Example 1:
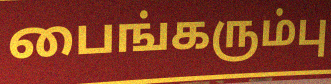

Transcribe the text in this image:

பைங்கரும்பு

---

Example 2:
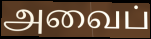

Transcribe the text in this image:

அவைப்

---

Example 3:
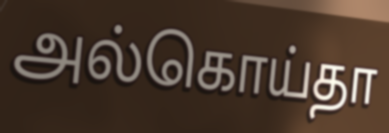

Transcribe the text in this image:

அல்கொய்தா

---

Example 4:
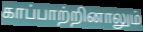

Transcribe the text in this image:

காப்பாற்றினாலும்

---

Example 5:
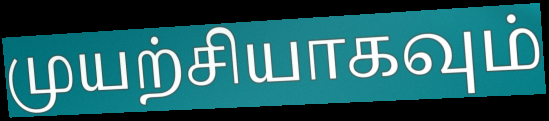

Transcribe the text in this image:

முயற்சியாகவும்